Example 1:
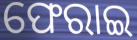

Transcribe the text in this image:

ଫେରାଇ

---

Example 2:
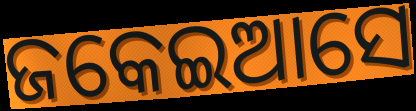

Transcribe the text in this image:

ଜକେଇଆସେ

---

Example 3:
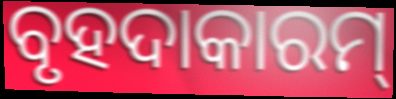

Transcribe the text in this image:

ବୃହଦାକାରମ୍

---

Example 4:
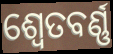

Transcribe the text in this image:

ଶ୍ୱେତବର୍ଣ୍ଣ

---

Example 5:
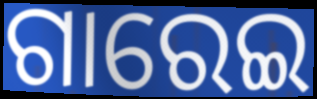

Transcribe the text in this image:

ଗାରେଇ